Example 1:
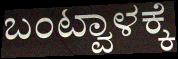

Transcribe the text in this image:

ಬಂಟ್ವಾಳಕ್ಕೆ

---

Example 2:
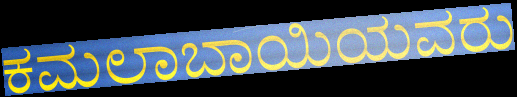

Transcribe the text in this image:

ಕಮಲಾಬಾಯಿಯವರು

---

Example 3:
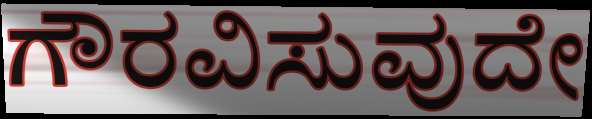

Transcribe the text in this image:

ಗೌರವಿಸುವುದೇ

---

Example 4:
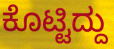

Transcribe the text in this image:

ಕೊಟ್ಟಿದ್ದು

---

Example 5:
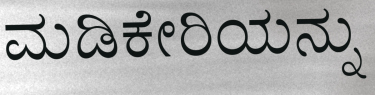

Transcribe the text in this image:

ಮಡಿಕೇರಿಯನ್ನು